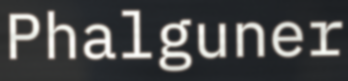
Phalguner